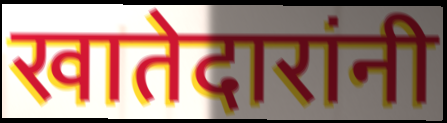
खातेदारांनी